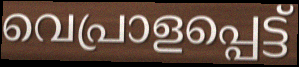
വെപ്രാളപ്പെട്ട്